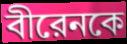
বীরেনকে